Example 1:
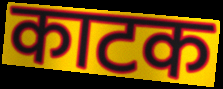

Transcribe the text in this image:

काटक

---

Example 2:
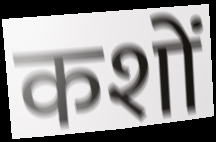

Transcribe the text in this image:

कशों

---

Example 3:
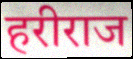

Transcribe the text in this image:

हरीराज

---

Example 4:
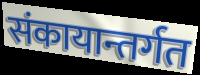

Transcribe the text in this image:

संकायान्तर्गत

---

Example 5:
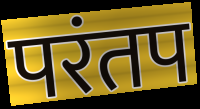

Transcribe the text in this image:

परंतप